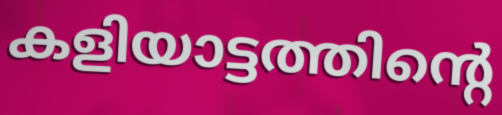
കളിയാട്ടത്തിന്റെ